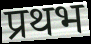
प्रथभ